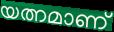
യത്നമാണ്